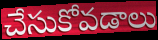
చేసుకోవడాలు